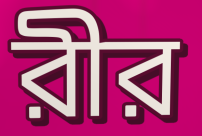
রীর